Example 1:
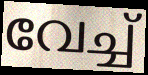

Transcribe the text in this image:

വേച്ച്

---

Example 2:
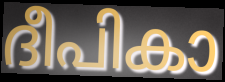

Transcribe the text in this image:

ദീപികാ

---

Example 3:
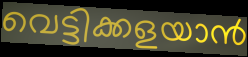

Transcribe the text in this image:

വെട്ടിക്കളയാൻ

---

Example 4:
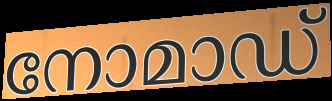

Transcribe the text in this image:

നോമാഡ്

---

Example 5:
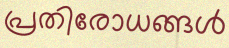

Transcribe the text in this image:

പ്രതിരോധങ്ങൾ